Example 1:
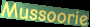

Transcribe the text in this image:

Mussoorie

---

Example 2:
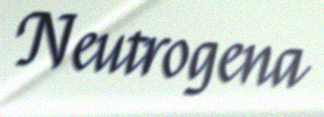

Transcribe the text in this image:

Neutrogena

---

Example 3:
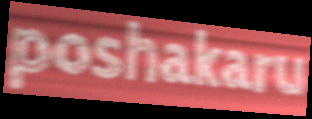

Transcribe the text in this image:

poshakaru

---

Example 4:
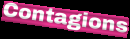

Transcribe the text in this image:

Contagions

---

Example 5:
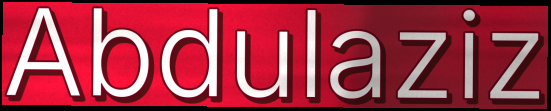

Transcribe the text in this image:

Abdulaziz